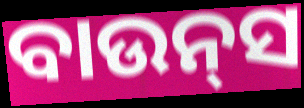
ବାଉନ୍‍ସ